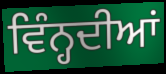
ਵਿੰਨ੍ਹਦੀਆਂ